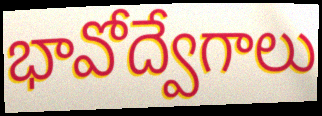
భావోద్వేగాలు